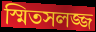
স্মিতসলজ্জ